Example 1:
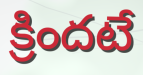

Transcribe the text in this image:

క్రిందటే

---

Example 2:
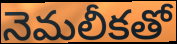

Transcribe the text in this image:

నెమలీకతో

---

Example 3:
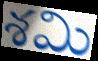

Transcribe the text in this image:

శమి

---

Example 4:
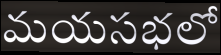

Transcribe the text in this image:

మయసభలో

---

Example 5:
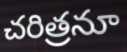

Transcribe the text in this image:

చరిత్రనూ